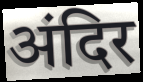
अंदिर